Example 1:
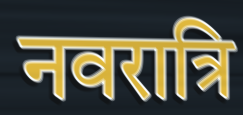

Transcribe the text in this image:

नवरात्रि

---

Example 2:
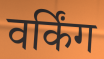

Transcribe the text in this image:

वर्किंग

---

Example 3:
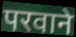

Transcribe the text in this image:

परवाने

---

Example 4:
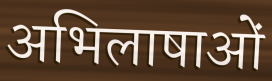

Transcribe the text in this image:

अभिलाषाओं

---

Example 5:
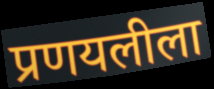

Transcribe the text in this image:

प्रणयलीला